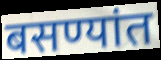
बसण्यांत